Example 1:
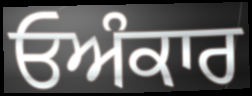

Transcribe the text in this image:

ਓਅੰਕਾਰ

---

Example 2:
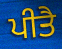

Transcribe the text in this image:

ਪੀਤੈ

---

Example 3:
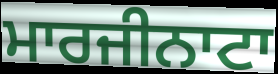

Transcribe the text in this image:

ਮਾਰਜੀਨਾਟਾ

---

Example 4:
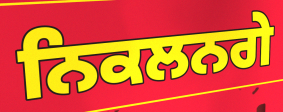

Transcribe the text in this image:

ਨਿਕਲਨਗੇ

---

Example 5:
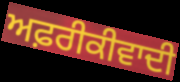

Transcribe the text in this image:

ਅਫ਼ਰੀਕੀਵਾਦੀ